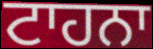
ਟਾਹਨਾ